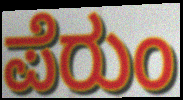
ಪೆರುಂ